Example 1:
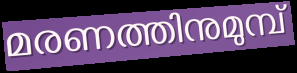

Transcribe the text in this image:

മരണത്തിനുമുമ്പ്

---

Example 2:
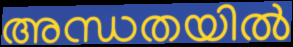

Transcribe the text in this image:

അന്ധതയിൽ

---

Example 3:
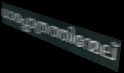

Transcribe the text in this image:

ധാരപ്പാത്രത്തിന്മേല്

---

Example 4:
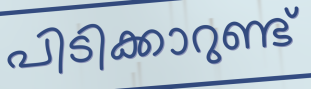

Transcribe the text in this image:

പിടിക്കാറുണ്ട്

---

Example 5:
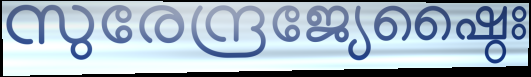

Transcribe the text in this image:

സുരേന്ദ്രജ്യേഷ്ഠൈഃ